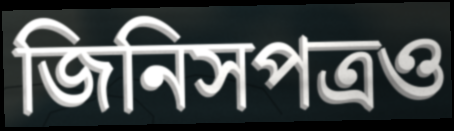
জিনিসপত্রও